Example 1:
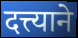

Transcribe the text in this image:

दत्त्याने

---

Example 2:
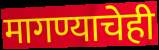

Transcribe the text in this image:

मागण्याचेही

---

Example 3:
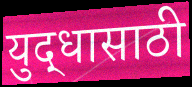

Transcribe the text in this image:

युद्धासाठी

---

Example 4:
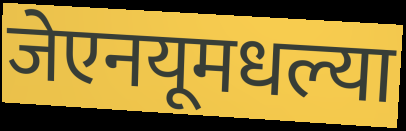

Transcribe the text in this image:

जेएनयूमधल्या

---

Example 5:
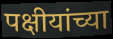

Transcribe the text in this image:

पक्षीयांच्या